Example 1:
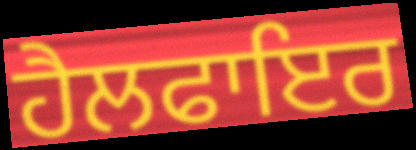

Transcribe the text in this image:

ਹੈਲਫਾਇਰ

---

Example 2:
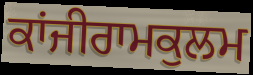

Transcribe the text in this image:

ਕਾਂਜੀਰਾਮਕੁਲਮ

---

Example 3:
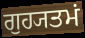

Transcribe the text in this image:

ਗੁਹ੍ਯਤਮਂ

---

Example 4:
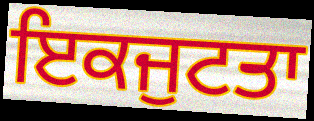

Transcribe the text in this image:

ਇਕਜੁਟਤਾ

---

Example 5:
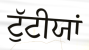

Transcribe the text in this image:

ਟੁੱਟੀਯਾਂ